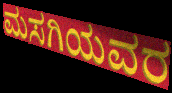
ಮಸಗಿಯವರ